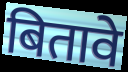
बितावे